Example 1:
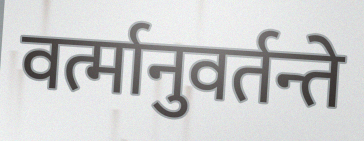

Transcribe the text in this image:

वर्त्मानुवर्तन्ते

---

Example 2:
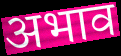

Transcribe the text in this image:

अभाव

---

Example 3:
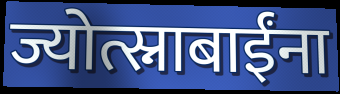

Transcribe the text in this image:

ज्योत्स्नाबाईंना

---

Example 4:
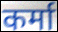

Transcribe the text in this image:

कर्मा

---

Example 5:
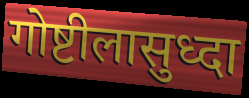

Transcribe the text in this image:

गोष्टीलासुध्दा